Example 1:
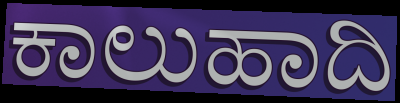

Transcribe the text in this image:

ಕಾಲುಹಾದಿ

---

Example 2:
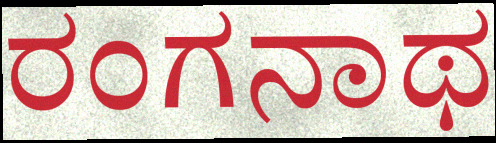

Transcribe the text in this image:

ರಂಗನಾಥ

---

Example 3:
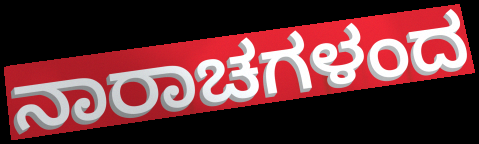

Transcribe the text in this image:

ನಾರಾಚಗಳಂದ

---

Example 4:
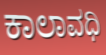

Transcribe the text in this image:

ಕಾಲಾವಧಿ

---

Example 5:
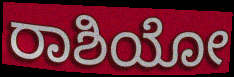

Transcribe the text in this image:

ರಾಶಿಯೋ